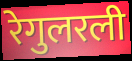
रेगुलरली